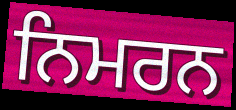
ਨਿਮਰਨ